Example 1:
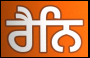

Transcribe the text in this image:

ਰੈਨਿ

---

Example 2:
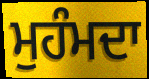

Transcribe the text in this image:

ਮੁਹੰਮਦਾ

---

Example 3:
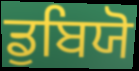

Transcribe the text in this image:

ਡੁਬਿਯੋ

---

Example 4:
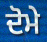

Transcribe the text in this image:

ਦੋਮੇ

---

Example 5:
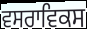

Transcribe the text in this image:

ਵਸਰਾਵਿਕਸ